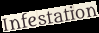
Infestation